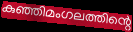
കുഞ്ഞിമംഗലത്തിന്റെ